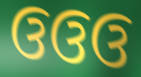
ઉઉઉ